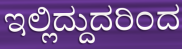
ಇಲ್ಲಿದ್ದುದರಿಂದ